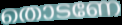
തൊടണേ